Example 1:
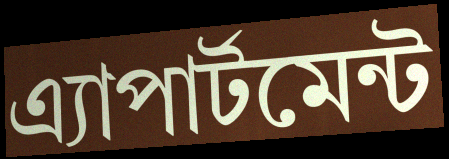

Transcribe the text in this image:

এ্যাপার্টমেন্ট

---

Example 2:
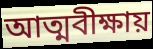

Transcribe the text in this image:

আত্মবীক্ষায়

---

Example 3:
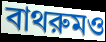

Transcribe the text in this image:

বাথরুমও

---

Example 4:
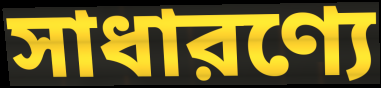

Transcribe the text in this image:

সাধারণ্যে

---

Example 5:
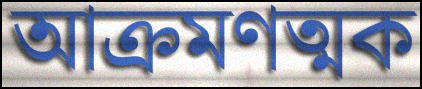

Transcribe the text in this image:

আক্রমণত্মক